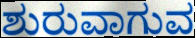
ಶುರುವಾಗುವ